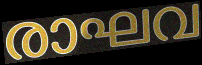
രാഘവ